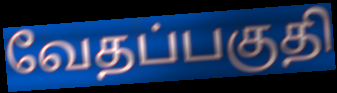
வேதப்பகுதி